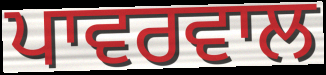
ਪਾਵਰਵਾਲ